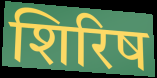
शिरिष